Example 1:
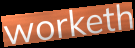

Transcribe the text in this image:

worketh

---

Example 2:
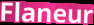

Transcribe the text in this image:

Flaneur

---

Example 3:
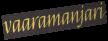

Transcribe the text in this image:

vaaramanjari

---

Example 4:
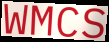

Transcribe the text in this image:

WMCS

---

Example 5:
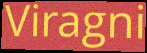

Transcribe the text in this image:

Viragni